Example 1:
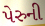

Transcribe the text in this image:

પેરુની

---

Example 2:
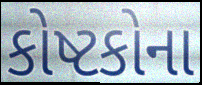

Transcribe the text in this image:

કોષ્ટકોના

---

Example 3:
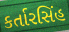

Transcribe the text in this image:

કર્તારસિંહ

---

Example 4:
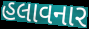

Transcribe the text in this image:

હલાવનાર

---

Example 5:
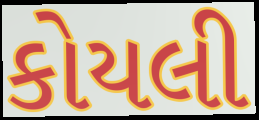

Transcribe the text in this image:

કોયલી